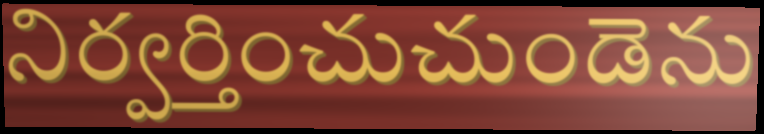
నిర్వర్తించుచుండెను